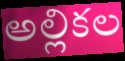
అల్లికల